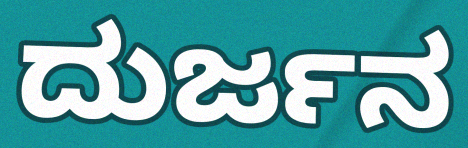
ದುರ್ಜನ